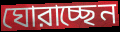
ঘোরাচ্ছেন